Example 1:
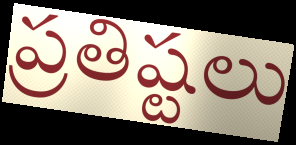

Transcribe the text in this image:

ప్రతిష్టలు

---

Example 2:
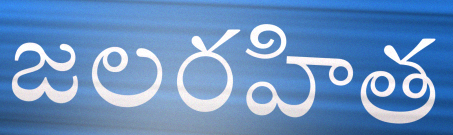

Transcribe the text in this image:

జలరహిత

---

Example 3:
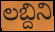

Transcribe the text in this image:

లబ్దిని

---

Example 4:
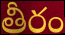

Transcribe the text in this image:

తీరం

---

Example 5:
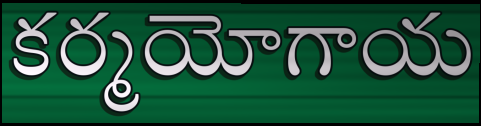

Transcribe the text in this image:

కర్మయోగాయ